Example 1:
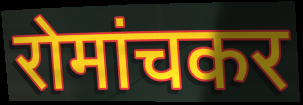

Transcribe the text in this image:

रोमांचकर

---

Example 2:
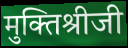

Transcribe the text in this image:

मुक्तिश्रीजी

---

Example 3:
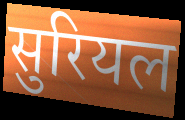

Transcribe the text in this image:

सुरियल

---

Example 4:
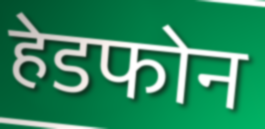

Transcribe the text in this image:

हेडफोन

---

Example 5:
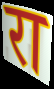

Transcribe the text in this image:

रा